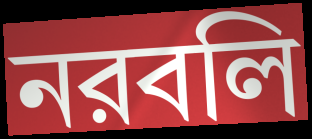
নরবলি